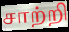
சாற்றி